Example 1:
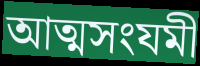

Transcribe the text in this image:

আত্মসংযমী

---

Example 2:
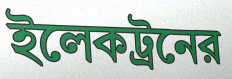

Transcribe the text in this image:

ইলেকট্রনের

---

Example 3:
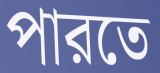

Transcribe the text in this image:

পারতে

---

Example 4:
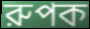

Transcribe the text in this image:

রুপক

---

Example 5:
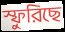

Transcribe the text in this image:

স্ফুরিছে